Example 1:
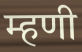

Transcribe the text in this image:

म्हणी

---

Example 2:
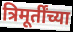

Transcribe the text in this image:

त्रिमूर्तींच्या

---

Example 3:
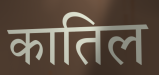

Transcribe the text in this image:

कातिल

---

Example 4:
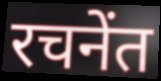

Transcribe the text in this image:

रचनेंत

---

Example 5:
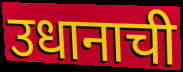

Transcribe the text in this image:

उधानाची